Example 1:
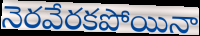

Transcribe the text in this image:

నెరవేరకపోయినా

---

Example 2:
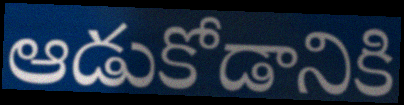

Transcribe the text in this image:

ఆడుకోడానికి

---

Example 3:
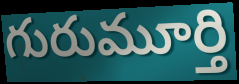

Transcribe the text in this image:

గురుమూర్తి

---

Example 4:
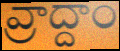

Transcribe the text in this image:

వ్రాద్దాం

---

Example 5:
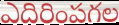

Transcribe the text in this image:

ఎదిరింపగల